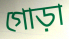
গোড়া